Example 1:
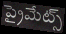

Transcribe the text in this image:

ప్రైమేట్స్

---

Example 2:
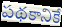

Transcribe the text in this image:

పథకానికే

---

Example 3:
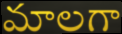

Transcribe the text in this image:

మాలగా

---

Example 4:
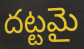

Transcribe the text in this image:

దట్టమై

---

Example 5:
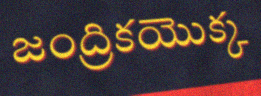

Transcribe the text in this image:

జంద్రికయొక్క